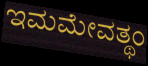
ಇಮಮೇವತ್ಥಂ